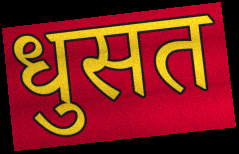
धुसत